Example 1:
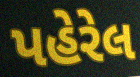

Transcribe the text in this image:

પહેરેલ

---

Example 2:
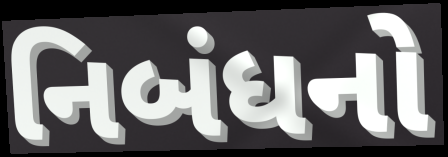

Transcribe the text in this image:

નિબંધનો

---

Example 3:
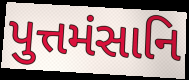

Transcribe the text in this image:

પુત્તમંસાનિ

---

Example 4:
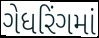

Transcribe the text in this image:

ગેધરિંગમાં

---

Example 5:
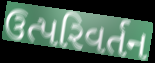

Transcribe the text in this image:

ઉત્પરિવર્તન